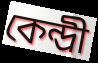
কেন্দ্রী